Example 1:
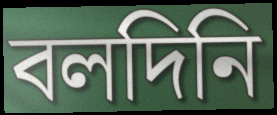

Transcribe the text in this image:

বলদিনি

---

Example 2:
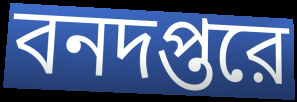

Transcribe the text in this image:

বনদপ্তরে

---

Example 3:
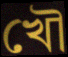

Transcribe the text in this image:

খৌ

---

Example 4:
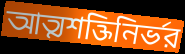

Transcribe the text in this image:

আত্মশক্তিনির্ভর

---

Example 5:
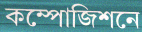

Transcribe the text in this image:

কম্পোজিশনে